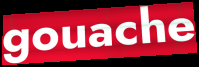
gouache